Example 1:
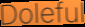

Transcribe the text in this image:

Doleful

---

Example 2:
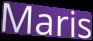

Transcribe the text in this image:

Maris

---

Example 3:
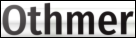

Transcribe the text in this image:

Othmer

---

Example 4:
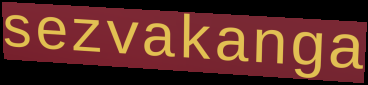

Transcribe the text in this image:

sezvakanga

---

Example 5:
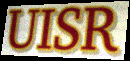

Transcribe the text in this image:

UISR